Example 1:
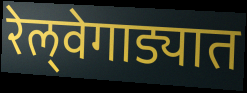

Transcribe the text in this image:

रेल्वेगाड्यात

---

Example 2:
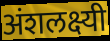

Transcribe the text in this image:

अंशलक्ष्यी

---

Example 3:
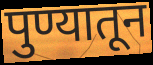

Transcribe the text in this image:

पुण्यातून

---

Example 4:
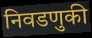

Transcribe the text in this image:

निवडणुकी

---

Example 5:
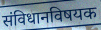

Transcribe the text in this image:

संविधानविषयक